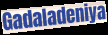
Gadaladeniya